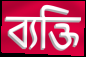
ব্যক্তি